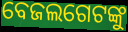
ବେଜଲଗେଟଙ୍କୁ